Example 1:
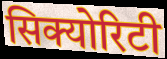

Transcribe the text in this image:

सिक्योरिटी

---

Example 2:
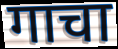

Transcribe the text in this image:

गाचा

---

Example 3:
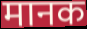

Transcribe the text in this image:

मानक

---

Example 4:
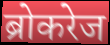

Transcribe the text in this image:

ब्रोकरेज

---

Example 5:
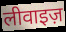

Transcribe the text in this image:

लीवाइज़